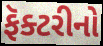
ફૅક્ટરીનો